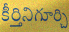
కీర్తినిగూర్చి